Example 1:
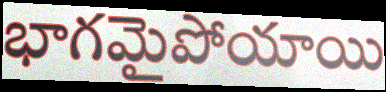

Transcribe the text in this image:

భాగమైపోయాయి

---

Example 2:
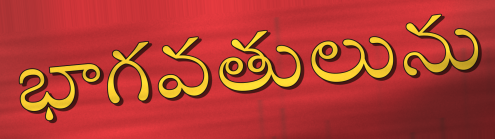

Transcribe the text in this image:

భాగవతులును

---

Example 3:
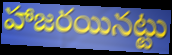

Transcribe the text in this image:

హాజరయినట్టు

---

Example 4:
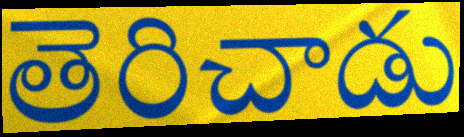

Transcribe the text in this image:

తెరిచాడు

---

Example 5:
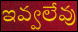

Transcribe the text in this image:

ఇవ్వలేవు